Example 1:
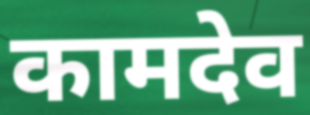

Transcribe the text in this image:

कामदेव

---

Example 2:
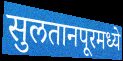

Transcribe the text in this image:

सुलतानपूरमध्ये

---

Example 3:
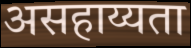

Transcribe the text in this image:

असहाय्यता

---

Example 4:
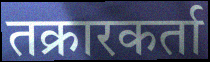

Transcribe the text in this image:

तक्रारकर्ता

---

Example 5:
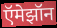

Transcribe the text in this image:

ऍमेझॉन